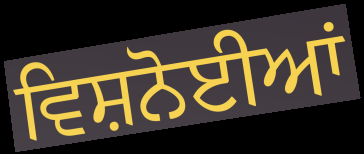
ਵਿਸ਼ਨੋਈਆਂ